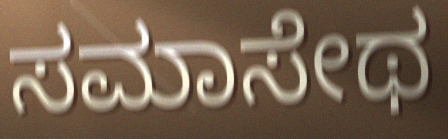
ಸಮಾಸೇಥ